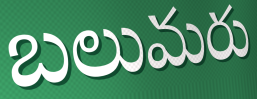
బలుమరు